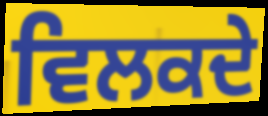
ਵਿਲਕਦੇ